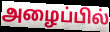
அழைப்பில்